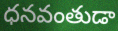
ధనవంతుడా